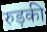
रुड़की